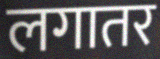
लगातर